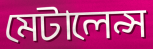
মেটালেন্স